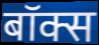
बॉक्स